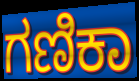
ಗಣಿಕಾ